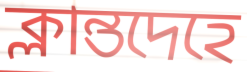
ক্লান্তদেহে